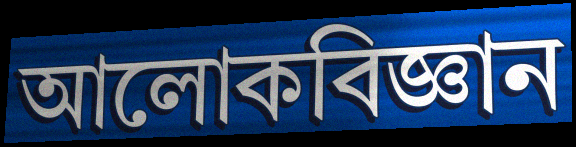
আলোকবিজ্ঞান